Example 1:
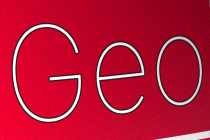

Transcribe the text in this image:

Geo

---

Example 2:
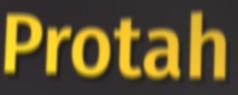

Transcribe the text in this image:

Protah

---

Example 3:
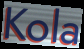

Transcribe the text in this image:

Kola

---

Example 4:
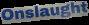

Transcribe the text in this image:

Onslaught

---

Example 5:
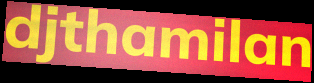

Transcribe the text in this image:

djthamilan